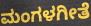
ಮಂಗಳಗೀತೆ